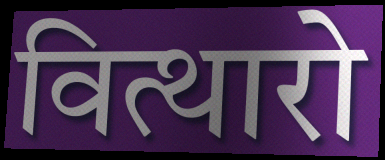
वित्थारो